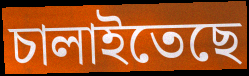
চালাইতেছে